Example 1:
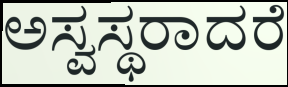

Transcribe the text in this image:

ಅಸ್ವಸ್ಥರಾದರೆ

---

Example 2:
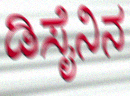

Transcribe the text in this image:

ಡಿಸೈನಿನ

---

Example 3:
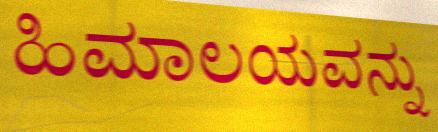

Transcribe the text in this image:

ಹಿಮಾಲಯವನ್ನು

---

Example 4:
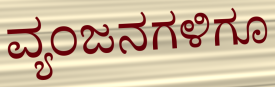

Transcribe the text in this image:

ವ್ಯಂಜನಗಳಿಗೂ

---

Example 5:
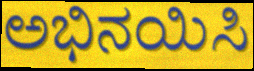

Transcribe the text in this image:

ಅಭಿನಯಿಸಿ